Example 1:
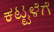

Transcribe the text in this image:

ಕಟ್ಟಳೆಗೆ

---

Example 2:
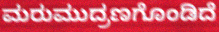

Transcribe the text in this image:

ಮರುಮುದ್ರಣಗೊಂಡಿದೆ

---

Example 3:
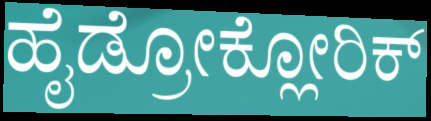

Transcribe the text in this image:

ಹೈಡ್ರೋಕ್ಲೋರಿಕ್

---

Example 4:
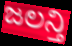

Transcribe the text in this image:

ಜಲನ್ತಿ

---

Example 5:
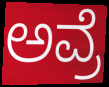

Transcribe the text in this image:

ಅವ್ರೆ